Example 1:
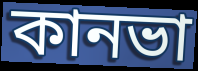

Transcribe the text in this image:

কানভা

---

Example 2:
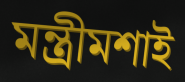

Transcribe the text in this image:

মন্ত্রীমশাই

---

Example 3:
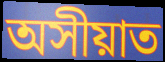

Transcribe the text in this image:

অসীয়াত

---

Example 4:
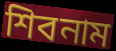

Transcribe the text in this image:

শিবনাম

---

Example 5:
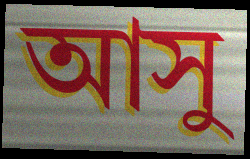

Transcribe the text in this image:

আসু